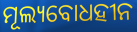
ମୂଲ୍ୟବୋଧହୀନ